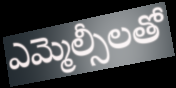
ఎమ్మెల్సీలతో